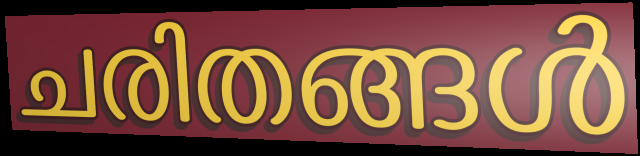
ചരിതങ്ങൾ